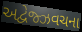
અદ્વેજ્ઝવચના